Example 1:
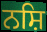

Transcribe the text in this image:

ਨਸ਼ਿ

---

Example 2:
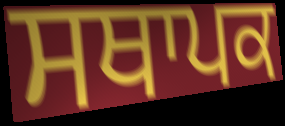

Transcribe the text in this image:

ਸਥਾਪਕ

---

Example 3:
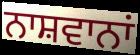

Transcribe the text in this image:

ਨਾਸ਼ਵਾਨਾਂ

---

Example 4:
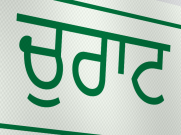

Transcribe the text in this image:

ਚੁਰਾਟ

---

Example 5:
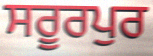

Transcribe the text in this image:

ਸਰੂਰਪੁਰ